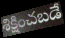
శిక్షించబడే